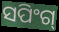
ସପିଂଗ୍